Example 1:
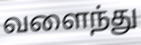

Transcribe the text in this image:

வளைந்து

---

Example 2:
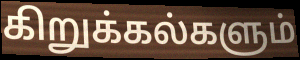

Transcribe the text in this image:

கிறுக்கல்களும்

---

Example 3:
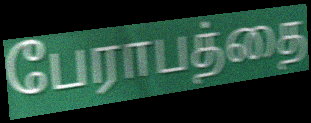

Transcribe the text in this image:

பேராபத்தை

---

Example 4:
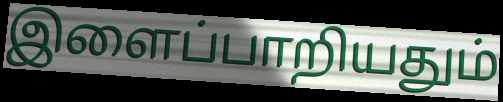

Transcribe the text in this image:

இளைப்பாறியதும்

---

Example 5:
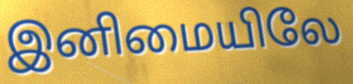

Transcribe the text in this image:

இனிமையிலே